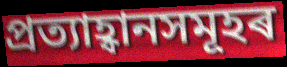
প্ৰত্যাহ্বানসমূহৰ